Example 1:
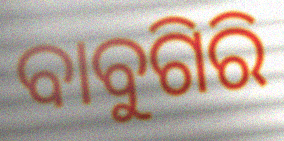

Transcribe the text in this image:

ବାବୁଗିରି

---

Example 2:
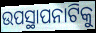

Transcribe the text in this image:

ଉପସ୍ଥାପନାଟିକୁ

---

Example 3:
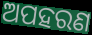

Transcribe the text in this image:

ଅପହରଣ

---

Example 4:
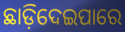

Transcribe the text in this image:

ଛାଡ଼ିଦେଇପାରେ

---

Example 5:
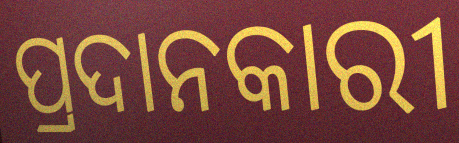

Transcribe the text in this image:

ପ୍ରଦାନକାରୀ